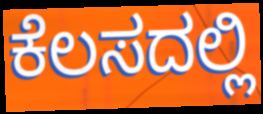
ಕೆಲಸದಲ್ಲಿ